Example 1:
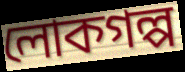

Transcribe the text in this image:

লোকগল্প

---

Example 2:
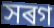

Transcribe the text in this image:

সৰগ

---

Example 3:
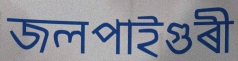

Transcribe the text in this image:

জলপাইগুৰী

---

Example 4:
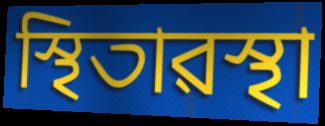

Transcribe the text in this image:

স্থিতাৱস্থা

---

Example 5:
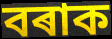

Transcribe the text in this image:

বৰাক